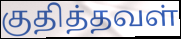
குதித்தவள்